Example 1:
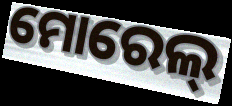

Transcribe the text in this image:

ମୋରେଲ୍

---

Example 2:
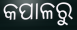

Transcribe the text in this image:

କପାଳରୁ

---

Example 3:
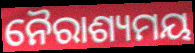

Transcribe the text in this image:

ନୈରାଶ୍ୟମୟ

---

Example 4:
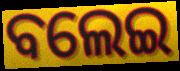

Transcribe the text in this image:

ବଲେଇ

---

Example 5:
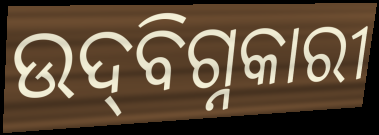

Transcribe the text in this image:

ଉଦ୍‌ବିଗ୍ନକାରୀ